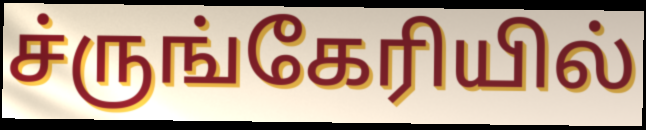
ச்ருங்கேரியில்